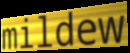
mildew